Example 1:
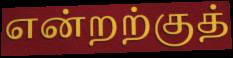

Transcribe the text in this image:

என்றற்குத்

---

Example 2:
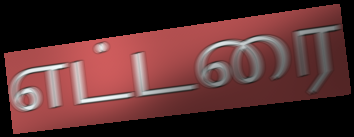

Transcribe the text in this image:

எட்டரை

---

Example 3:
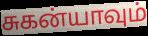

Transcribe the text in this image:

சுகன்யாவும்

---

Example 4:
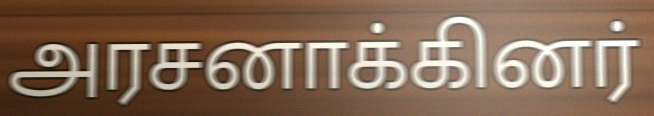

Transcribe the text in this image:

அரசனாக்கினர்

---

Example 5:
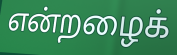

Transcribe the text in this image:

என்றழைக்